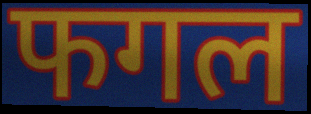
फगल